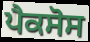
ਪੈਕਸੋਸ